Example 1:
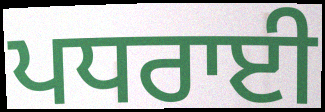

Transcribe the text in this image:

ਪਧਰਾਈ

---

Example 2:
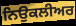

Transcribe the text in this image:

ਨਿਉਕਲੀਅਰ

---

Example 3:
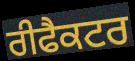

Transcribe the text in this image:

ਰੀਫੈਕਟਰ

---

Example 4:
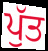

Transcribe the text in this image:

ਪੁੱਤ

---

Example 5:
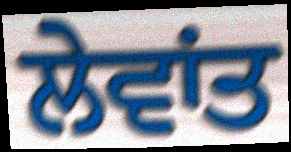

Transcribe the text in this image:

ਲੇਵਾਂਤ